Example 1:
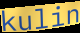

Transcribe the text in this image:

kulin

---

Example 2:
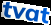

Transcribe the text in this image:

tvat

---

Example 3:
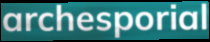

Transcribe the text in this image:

archesporial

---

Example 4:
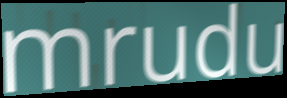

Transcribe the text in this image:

mrudu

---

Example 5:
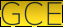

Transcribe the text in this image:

GCE